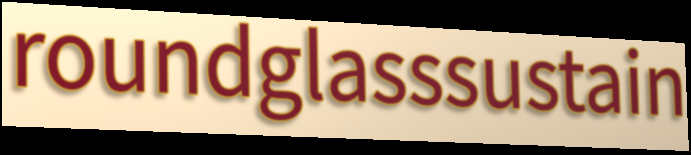
roundglasssustain